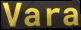
Vara